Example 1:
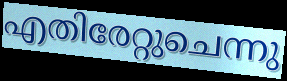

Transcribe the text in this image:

എതിരേറ്റുചെന്നു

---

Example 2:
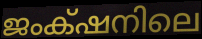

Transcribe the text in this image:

ജംക്‌ഷനിലെ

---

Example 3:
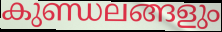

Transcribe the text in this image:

കുണ്ഡലങ്ങളും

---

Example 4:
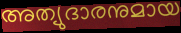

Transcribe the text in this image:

അത്യുദാരനുമായ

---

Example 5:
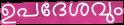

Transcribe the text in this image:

ഉപദേശവും